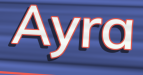
Ayra